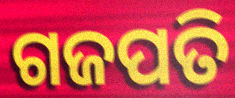
ଗଜପତି